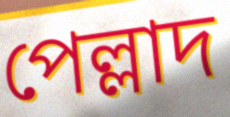
পেল্লাদ